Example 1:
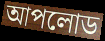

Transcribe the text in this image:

আপলোড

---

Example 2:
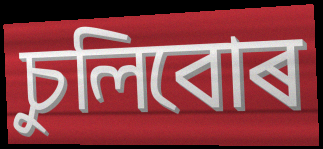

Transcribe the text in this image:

চুলিবোৰ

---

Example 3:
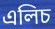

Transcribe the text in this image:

এলিচ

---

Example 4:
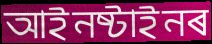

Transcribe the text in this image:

আইনষ্টাইনৰ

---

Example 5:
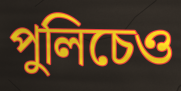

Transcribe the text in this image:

পুলিচেও